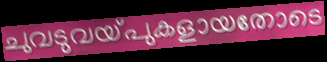
ചുവടുവയ്‌പുകളായതോടെ